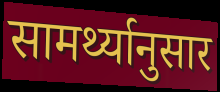
सामर्थ्यानुसार